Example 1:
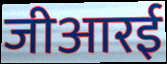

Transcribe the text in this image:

जीआरई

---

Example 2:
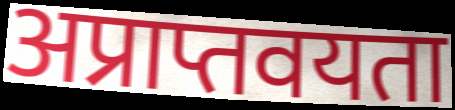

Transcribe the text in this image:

अप्राप्तवयता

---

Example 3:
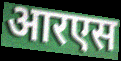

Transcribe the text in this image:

आरएस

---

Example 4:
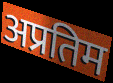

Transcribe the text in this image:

अप्रतिम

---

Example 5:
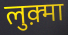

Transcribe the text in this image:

लुक़्मा